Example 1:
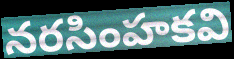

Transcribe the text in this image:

నరసింహకవి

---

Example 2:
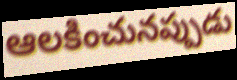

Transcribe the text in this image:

ఆలకించునప్పుడు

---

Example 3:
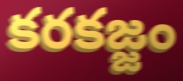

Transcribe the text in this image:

కరకజ్జం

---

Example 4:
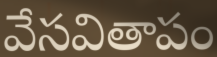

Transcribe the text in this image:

వేసవితాపం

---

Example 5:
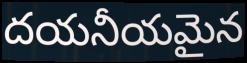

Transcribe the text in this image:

దయనీయమైన